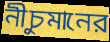
নীচুমানের